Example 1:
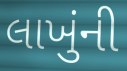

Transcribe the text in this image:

લાખુંની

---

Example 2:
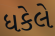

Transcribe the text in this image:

ધકેલે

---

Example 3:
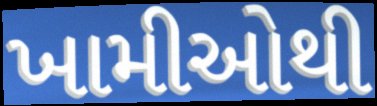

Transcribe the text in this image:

ખામીઓથી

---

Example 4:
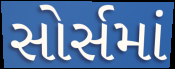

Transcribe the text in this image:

સોર્સમાં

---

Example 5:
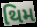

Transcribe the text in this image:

થિમ